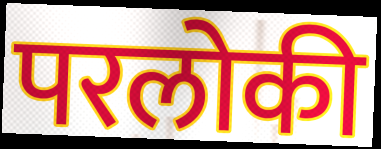
परलोकी